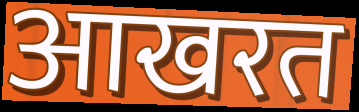
आखरत